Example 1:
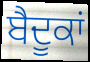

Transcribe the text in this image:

ਬੈਦੂਕਾਂ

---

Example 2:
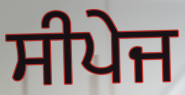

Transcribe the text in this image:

ਸੀਪੇਜ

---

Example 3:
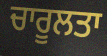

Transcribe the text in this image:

ਚਾਰੂਲਤਾ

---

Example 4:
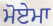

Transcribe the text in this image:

ਮੋਏਮਾ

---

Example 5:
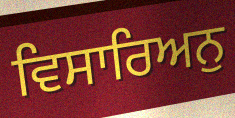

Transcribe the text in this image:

ਵਿਸਾਰਿਅਨੁ